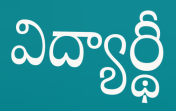
విద్యార్థీ